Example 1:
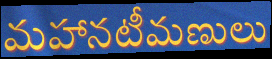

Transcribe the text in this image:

మహానటీమణులు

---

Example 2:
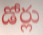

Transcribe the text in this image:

డోర్లు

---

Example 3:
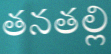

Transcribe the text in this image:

తనతల్లి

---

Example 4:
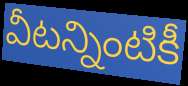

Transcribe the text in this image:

వీటన్నింటికీ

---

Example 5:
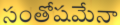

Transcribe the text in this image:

సంతోషమేనా